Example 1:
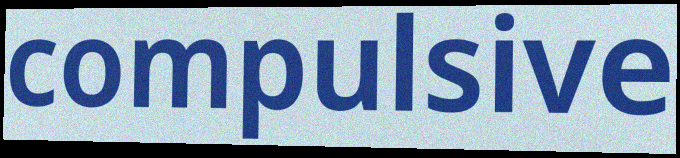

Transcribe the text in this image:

compulsive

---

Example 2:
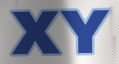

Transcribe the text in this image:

XY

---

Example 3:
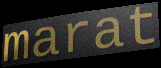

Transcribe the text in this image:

marat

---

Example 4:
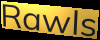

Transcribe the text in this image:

Rawls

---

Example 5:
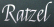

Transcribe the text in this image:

Ratzel